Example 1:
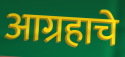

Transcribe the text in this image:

आग्रहाचे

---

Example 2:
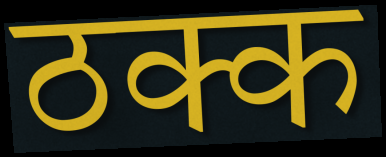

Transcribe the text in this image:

ठक्क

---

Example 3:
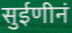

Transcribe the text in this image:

सुईणीनं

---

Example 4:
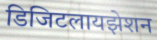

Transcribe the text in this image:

डिजिटलायझेशन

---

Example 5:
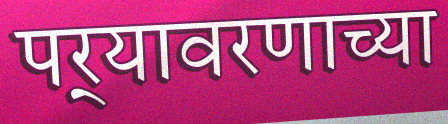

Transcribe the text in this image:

पर्यावरणाच्या